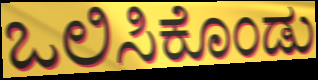
ಒಲಿಸಿಕೊಂಡು